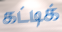
கட்டிக்